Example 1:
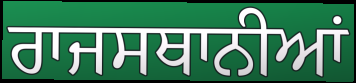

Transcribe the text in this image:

ਰਾਜਸਥਾਨੀਆਂ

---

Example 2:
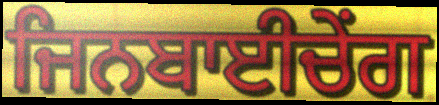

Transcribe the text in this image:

ਜਿਨਬਾਈਚੇਂਗ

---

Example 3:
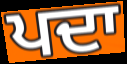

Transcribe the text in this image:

ਪਦਾ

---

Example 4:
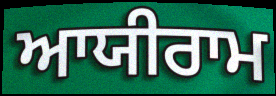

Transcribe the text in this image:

ਆਯੀਰਾਮ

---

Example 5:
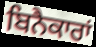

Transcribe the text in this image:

ਬਿਨੈਕਾਰਾਂ